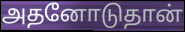
அதனோடுதான்